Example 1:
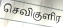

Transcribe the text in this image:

செவிகுளிர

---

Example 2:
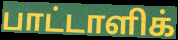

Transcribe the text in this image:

பாட்டாளிக்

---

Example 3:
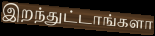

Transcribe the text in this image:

இறந்துட்டாங்களா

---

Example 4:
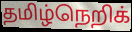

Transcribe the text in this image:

தமிழ்நெறிக்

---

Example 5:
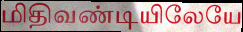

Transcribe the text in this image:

மிதிவண்டியிலேயே